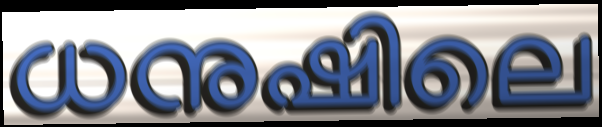
ധനുഷിലെ